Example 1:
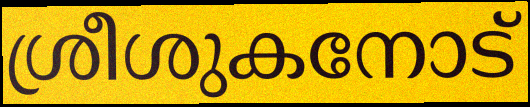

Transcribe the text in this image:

ശ്രീശുകനോട്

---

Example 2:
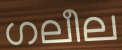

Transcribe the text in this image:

ഗലീല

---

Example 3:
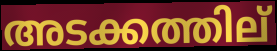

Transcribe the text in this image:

അടക്കത്തില്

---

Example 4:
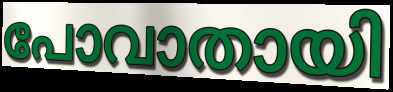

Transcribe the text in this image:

പോവാതായി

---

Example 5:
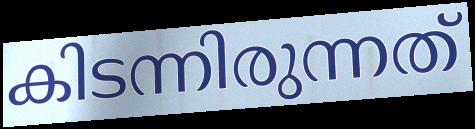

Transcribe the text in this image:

കിടന്നിരുന്നത്